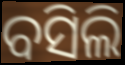
ବସିଲି